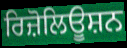
ਰਿਜ਼ੋਲਿਊਸ਼ਨ